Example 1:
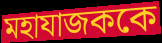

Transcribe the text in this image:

মহাযাজককে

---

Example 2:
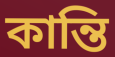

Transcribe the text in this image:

কান্তি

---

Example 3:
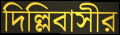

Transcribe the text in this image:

দিল্লিবাসীর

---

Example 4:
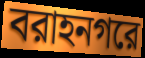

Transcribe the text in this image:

বরাহনগরে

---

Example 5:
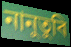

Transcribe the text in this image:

নানুতুবি